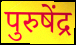
पुरुषेंद्र